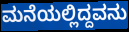
ಮನೆಯಲ್ಲಿದ್ದವನು